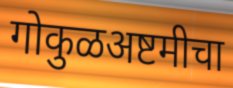
गोकुळअष्टमीचा